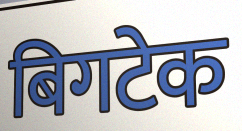
बिगटेक